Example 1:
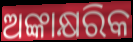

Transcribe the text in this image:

ଅଙ୍କାକ୍ଷରିକ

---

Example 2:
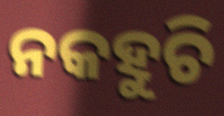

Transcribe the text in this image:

ନକହୁଚି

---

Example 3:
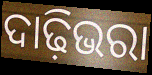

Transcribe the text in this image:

ଦାଢ଼ିଭରା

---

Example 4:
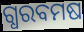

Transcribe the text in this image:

ଗ୍ଧରବମଷ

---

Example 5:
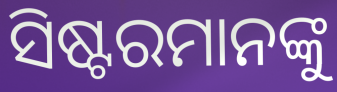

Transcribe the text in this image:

ସିଷ୍ଟରମାନଙ୍କୁ